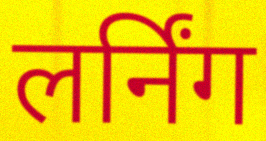
लर्निंग